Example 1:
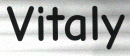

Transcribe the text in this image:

Vitaly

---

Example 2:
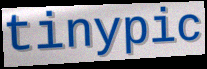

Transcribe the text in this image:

tinypic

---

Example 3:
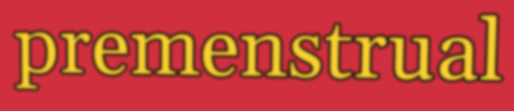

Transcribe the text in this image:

premenstrual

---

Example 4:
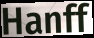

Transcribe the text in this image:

Hanff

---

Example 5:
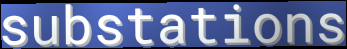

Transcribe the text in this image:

substations